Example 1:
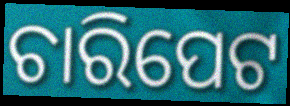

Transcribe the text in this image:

ଚାରିପେଟ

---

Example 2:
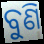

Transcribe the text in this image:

ବୁଣି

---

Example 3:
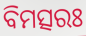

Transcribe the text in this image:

ବିମତ୍ସରଃ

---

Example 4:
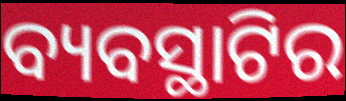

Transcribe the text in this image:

ବ୍ୟବସ୍ଥାଟିର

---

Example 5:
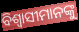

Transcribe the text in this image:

ବିଶ୍ୱାସୀମାନଙ୍କୁ